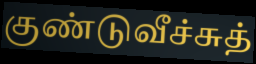
குண்டுவீச்சுத்